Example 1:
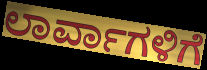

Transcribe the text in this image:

ಲಾರ್ವಾಗಳಿಗೆ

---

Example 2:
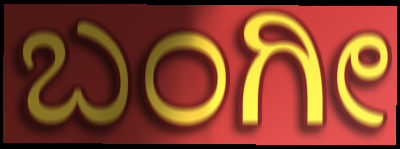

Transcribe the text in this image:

ಬಂಗೀ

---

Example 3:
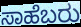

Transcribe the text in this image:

ಸಾಹೆಬರು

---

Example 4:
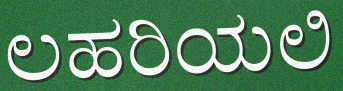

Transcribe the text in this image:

ಲಹರಿಯಲಿ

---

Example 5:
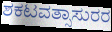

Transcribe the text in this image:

ಶಕಟವತ್ಸಾಸುರರ